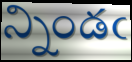
న్నిండఁ